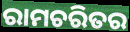
ରାମଚରିତର